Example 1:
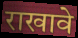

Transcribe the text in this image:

राखावे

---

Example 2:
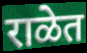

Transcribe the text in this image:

राळेत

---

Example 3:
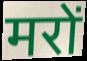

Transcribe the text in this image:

मरों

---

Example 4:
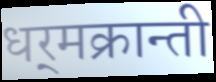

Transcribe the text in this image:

धर्मक्रान्ती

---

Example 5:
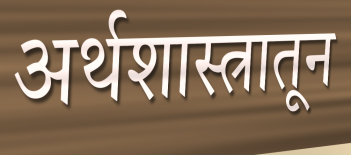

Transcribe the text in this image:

अर्थशास्त्रातून